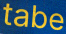
tabe